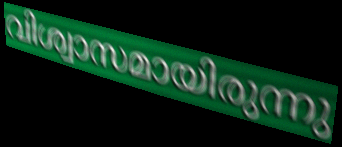
വിശ്വാസമായിരുന്നു